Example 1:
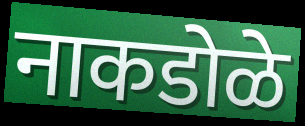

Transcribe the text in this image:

नाकडोळे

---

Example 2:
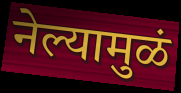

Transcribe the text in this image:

नेल्यामुळं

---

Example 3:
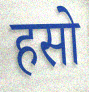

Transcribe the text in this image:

हसो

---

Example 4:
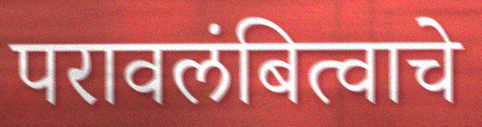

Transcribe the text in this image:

परावलंबित्वाचे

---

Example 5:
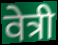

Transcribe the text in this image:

वेत्री